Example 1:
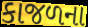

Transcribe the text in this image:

કાજળના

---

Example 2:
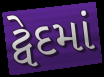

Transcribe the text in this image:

ટ્વેદમાં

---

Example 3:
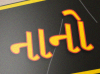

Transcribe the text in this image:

નાનો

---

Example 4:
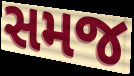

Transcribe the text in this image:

સમજ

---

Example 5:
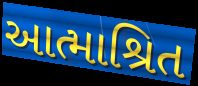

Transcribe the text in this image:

આત્માશ્રિત